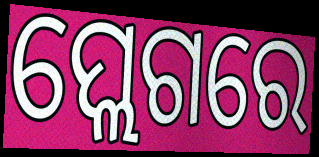
ପ୍ଲେଗରେ